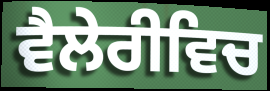
ਵੈਲੇਰੀਵਿਚ